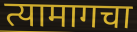
त्यामागचा